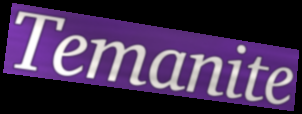
Temanite